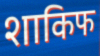
शाकिफ